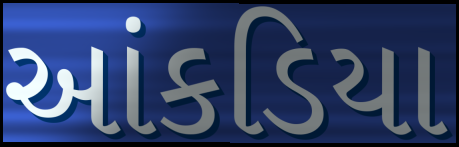
આંકડિયા